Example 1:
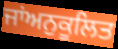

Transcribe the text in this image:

ਜਾਂਅਨੁਕੂਲਿਤ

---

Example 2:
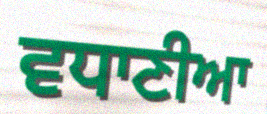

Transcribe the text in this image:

ਵਧਾਣੀਆ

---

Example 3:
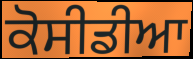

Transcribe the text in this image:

ਕੋਸੀਡੀਆ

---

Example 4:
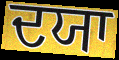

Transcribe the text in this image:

ਦਯਾ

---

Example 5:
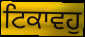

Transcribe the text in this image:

ਟਿਕਾਵਹੁ